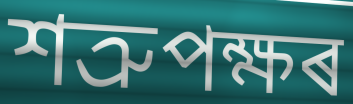
শত্ৰুপক্ষৰ